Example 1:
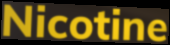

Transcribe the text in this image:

Nicotine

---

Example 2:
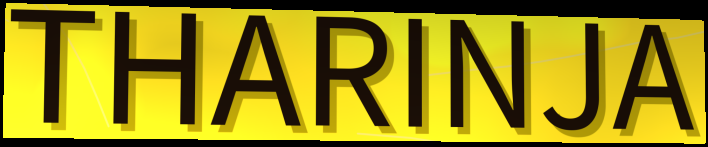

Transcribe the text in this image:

THARINJA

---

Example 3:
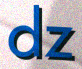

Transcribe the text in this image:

dz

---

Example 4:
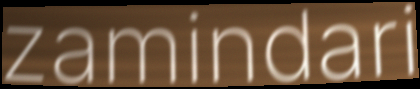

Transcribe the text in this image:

zamindari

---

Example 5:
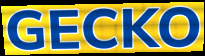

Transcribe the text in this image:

GECKO